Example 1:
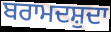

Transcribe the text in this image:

ਬਰਾਮਦਸ਼ੁਦਾ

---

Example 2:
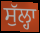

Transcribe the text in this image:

ਸੁੱਲ੍ਹਾ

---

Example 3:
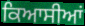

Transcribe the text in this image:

ਕਿਆਸੀਆਂ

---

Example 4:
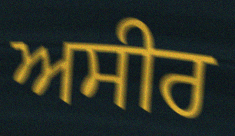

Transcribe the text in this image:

ਅਸੀਰ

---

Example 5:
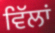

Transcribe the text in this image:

ਵਿੱਲਾਂ